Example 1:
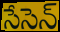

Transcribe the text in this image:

సేసెన్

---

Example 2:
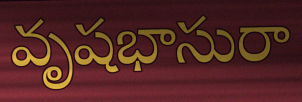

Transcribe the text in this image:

వృషభాసురా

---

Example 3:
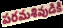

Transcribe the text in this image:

పరమశివుడికి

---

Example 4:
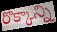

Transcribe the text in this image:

రొక్కాన్ని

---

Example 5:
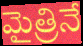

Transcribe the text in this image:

మైత్రినే